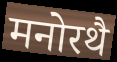
मनोरथै